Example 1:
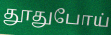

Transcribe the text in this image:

தூதுபோய்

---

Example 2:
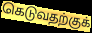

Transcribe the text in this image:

கெடுவதற்குக்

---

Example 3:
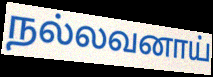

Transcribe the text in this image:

நல்லவனாய்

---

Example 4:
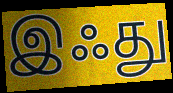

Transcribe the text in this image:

இஃது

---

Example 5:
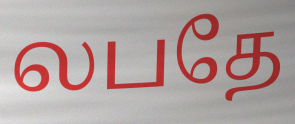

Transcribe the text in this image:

லபதே